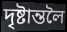
দৃষ্টান্তলৈ